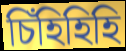
চিঁহিহিহি